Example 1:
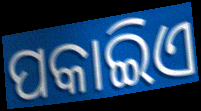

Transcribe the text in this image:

ପକାଇିଏ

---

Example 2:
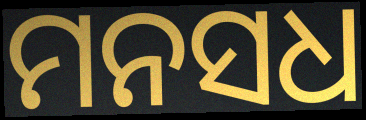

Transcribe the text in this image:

ମନସଧ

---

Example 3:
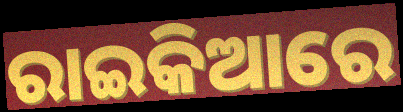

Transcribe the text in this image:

ରାଇକିଆରେ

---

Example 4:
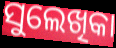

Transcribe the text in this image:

ସୁଲେଖିକା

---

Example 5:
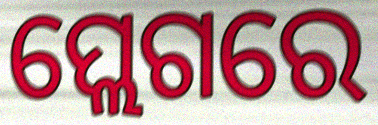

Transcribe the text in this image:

ପ୍ଲେଗରେ